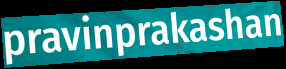
pravinprakashan